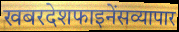
खबरदेशफाइनेंसव्यापार